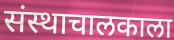
संस्थाचालकाला